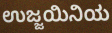
ಉಜ್ಜಯಿನಿಯ